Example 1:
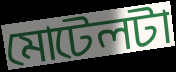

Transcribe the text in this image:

মোটেলটা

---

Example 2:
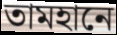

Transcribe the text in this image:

তামহানে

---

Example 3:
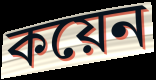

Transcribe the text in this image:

কয়েন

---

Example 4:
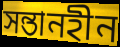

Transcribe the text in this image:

সন্তানহীন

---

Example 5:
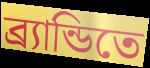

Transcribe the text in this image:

ব্র্যান্ডিতে